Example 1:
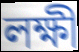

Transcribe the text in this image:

লক্ষী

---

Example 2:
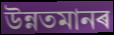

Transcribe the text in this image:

উন্নতমানৰ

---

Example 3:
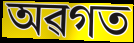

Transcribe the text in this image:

অৱগত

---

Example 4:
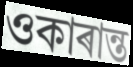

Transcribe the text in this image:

ওকাৰান্ত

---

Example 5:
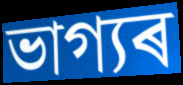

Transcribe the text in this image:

ভাগ্যৰ